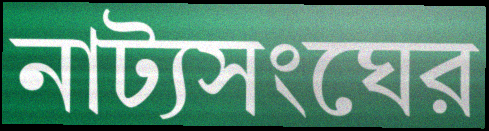
নাট্যসংঘের